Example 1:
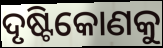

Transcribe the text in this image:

ଦୃଷ୍ଟିକୋଣକୁ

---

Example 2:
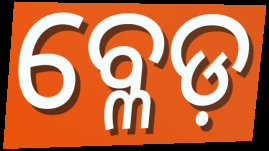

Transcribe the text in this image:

ବ୍ଳେଡ଼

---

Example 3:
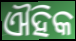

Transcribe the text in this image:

ଐହିକ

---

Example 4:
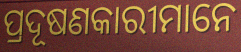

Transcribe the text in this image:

ପ୍ରଦୂଷଣକାରୀମାନେ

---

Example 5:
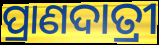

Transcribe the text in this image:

ପ୍ରାଣଦାତ୍ରୀ